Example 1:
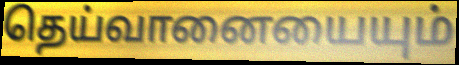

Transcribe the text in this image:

தெய்வானையையும்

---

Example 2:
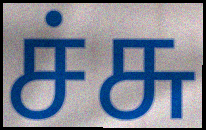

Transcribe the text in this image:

ச்சு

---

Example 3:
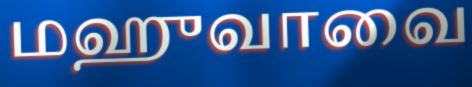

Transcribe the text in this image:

மஹுவாவை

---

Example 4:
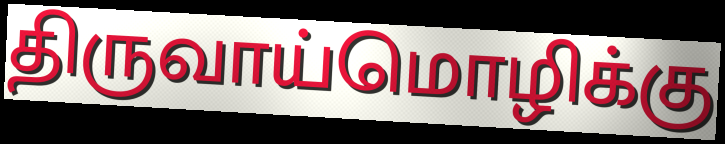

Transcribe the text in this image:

திருவாய்மொழிக்கு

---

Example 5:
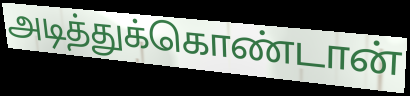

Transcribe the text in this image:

அடித்துக்கொண்டான்